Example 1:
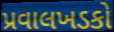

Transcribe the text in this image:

પ્રવાલખડકો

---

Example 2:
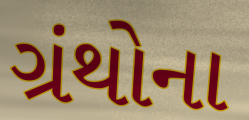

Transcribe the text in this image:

ગ્રંથોના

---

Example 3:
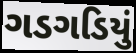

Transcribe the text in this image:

ગડગડિયું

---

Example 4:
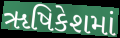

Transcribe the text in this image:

ૠષિકેશમાં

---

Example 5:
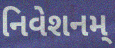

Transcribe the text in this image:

નિવેશનમ્